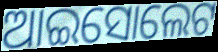
ଆଇସୋଲେଟ